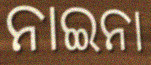
ନାଇନା